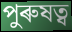
পুৰুষত্ব